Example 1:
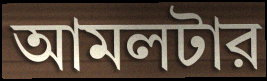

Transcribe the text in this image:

আমলটার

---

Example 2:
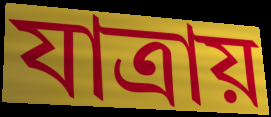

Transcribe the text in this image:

যাত্রায়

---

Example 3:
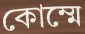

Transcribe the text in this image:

কোম্মে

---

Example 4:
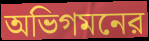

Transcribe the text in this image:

অভিগমনের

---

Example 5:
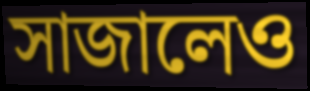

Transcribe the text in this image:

সাজালেও